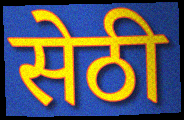
सेठी